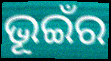
ଭୂଇଁର